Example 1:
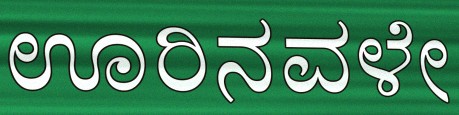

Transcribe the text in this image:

ಊರಿನವಳೇ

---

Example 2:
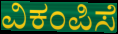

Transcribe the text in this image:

ವಿಕಂಪಿಸೆ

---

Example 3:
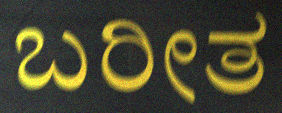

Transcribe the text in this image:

ಬರೀತ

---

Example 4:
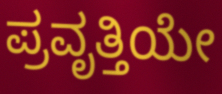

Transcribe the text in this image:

ಪ್ರವೃತ್ತಿಯೇ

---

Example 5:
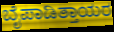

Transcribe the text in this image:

ಬೈಪಾಡಿತ್ತಾಯರ